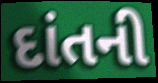
દાંતની